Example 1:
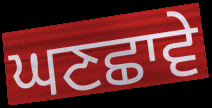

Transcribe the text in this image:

ਘਣਛਾਵੇ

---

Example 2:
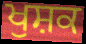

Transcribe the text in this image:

ਖੁਸ਼ਕ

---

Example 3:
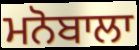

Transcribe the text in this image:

ਮਨੋਬਾਲਾ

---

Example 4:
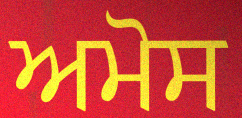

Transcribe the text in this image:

ਅਮੋਸ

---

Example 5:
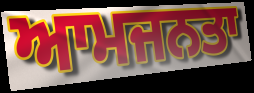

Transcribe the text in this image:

ਆਮਜਨਤਾ